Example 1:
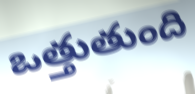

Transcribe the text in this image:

ఒత్తుతుంది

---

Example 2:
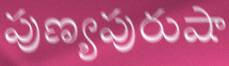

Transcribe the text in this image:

పుణ్యపురుషా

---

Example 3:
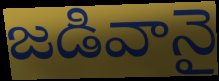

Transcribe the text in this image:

జడివానై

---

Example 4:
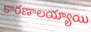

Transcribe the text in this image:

కారణాలయ్యాయి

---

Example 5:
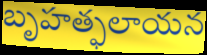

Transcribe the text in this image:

బృహత్ఫలాయన